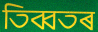
তিব্বতৰ